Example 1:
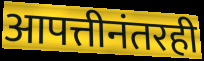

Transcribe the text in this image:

आपत्तीनंतरही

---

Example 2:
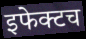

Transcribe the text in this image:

इफेक्टच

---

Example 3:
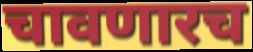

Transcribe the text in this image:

चावणारच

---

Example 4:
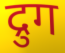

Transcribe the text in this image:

द्रुग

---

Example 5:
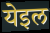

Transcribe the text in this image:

येइल